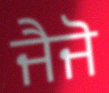
ਜੈਜੋ